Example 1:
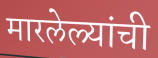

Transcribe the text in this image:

मारलेल्यांची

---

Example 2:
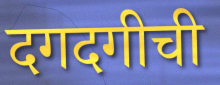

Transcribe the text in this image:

दगदगीची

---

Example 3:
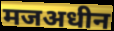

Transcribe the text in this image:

मजअधीन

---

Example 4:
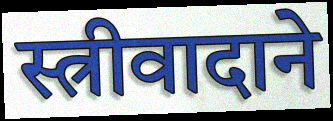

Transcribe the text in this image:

स्त्रीवादाने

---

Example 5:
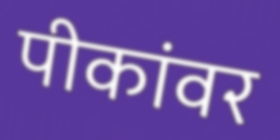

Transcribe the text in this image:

पीकांवर